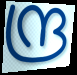
ന്ദ്ര